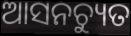
ଆସନଚ୍ୟୁତ